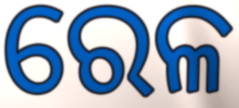
ରେଳ